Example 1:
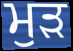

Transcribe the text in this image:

ਮੁੜ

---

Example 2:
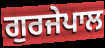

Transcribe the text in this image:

ਗੁਰਜੇਪਾਲ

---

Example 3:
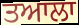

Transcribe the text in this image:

ਤਆਲਾ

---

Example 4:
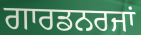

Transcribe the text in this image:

ਗਾਰਡਨਰਜਾਂ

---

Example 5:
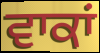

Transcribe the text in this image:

ਵਾਕਾਂ